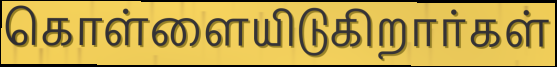
கொள்ளையிடுகிறார்கள்